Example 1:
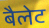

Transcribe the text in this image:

बैलेट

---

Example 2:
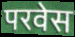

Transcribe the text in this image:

परवेस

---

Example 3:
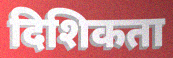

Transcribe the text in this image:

दिशिकता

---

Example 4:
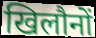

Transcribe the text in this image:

खिलौनों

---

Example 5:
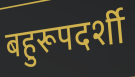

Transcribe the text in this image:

बहुरूपदर्शी